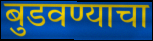
बुडवण्याचा